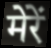
मेरें